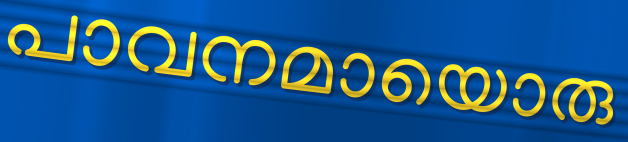
പാവനമായൊരു